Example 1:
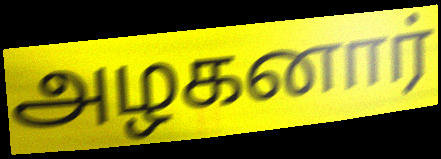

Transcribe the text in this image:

அழகனார்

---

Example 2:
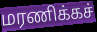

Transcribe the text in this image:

மரணிக்கச்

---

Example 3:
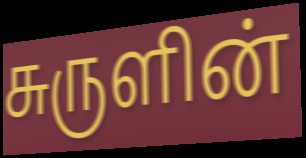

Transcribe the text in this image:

சுருளின்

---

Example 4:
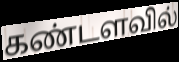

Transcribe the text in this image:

கண்டளவில்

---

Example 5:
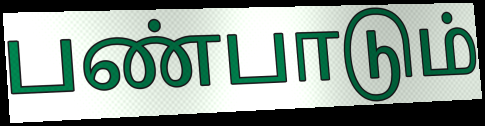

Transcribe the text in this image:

பண்பாடும்